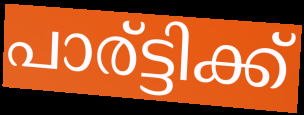
പാര്ട്ടിക്ക്